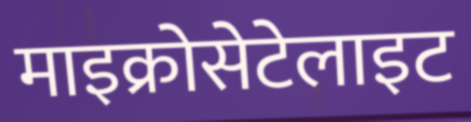
माइक्रोसेटेलाइट